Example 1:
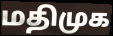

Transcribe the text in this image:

மதிமுக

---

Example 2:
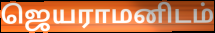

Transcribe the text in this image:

ஜெயராமனிடம்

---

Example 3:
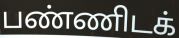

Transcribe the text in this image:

பண்ணிடக்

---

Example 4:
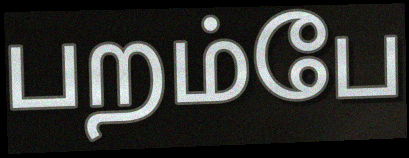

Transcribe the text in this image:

பறம்பே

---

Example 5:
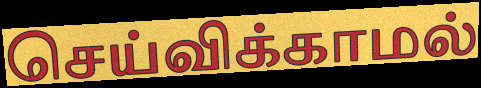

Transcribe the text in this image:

செய்விக்காமல்